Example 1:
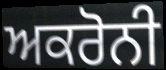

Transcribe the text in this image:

ਅਕਰੋਨੀ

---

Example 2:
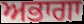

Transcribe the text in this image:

ਅਭਾਗਾ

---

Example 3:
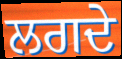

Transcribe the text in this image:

ਲਗਦੇ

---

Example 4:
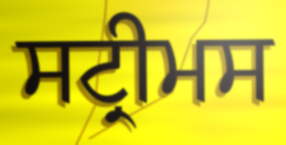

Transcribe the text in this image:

ਸਟ੍ਰੀਮਸ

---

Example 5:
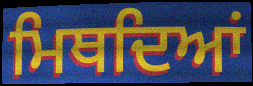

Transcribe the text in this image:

ਮਿਥਦਿਆਂ